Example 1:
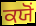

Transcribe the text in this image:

ਕਯੋਂ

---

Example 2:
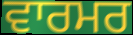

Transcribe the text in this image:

ਵਾਰਮਰ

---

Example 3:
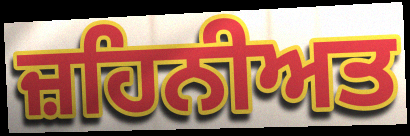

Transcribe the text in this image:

ਜ਼ਹਿਨੀਅਤ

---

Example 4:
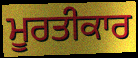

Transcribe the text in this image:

ਮੂਰਤੀਕਾਰ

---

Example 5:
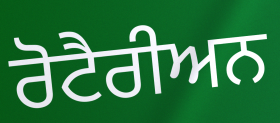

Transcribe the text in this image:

ਰੋਟੈਰੀਅਨ